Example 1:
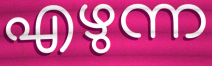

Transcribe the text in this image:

എഴുന്ന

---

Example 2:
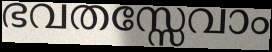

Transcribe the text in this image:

ഭവതസ്സേവാം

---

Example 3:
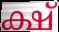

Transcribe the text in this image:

ക്ഷ്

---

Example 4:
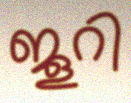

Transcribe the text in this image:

ജൂറി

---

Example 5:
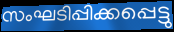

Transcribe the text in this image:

സംഘടിപ്പിക്കപ്പെട്ടു